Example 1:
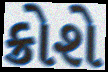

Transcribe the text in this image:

ક્રોશે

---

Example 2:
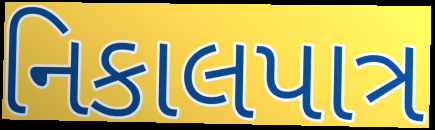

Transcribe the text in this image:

નિકાલપાત્ર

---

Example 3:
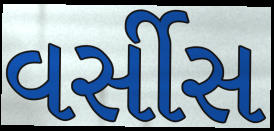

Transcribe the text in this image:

વર્સીસ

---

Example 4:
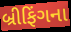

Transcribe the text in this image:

બ્રીફિંગના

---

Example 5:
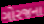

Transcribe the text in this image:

ગોરજના